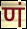
णं